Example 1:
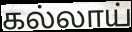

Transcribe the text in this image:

கல்லாய்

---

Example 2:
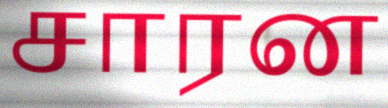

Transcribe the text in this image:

சாரன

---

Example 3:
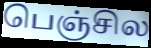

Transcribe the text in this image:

பெஞ்சில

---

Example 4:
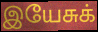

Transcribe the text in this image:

இயேசுக்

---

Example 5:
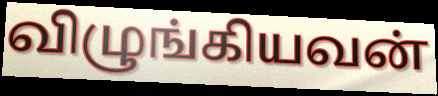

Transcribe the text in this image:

விழுங்கியவன்